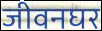
जीवनघर